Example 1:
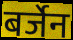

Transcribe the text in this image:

बर्जेन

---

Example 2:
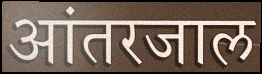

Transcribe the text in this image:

आंतरजाल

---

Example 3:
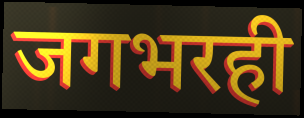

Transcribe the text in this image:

जगभरही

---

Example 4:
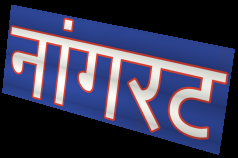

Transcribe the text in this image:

नांगरट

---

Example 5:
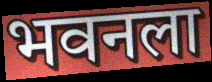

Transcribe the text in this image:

भवनला